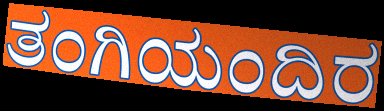
ತಂಗಿಯಂದಿರ